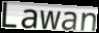
Lawan